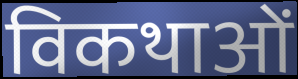
विकथाओं